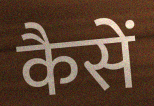
कैसें